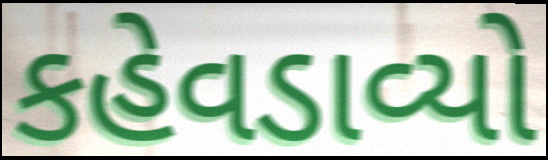
કહેવડાવ્યો